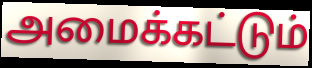
அமைக்கட்டும்